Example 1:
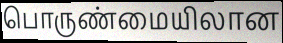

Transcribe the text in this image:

பொருண்மையிலான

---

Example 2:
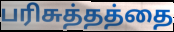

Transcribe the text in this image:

பரிசுத்தத்தை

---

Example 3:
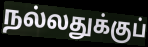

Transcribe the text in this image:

நல்லதுக்குப்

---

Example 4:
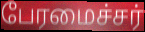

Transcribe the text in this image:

பேரமைச்சர்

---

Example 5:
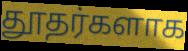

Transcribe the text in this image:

தூதர்களாக